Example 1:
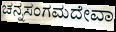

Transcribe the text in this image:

ಚನ್ನಸಂಗಮದೇವಾ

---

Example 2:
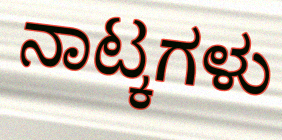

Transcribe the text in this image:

ನಾಟ್ಕಗಳು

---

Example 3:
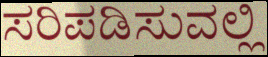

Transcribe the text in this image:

ಸರಿಪಡಿಸುವಲ್ಲಿ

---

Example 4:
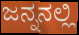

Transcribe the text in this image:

ಜನ್ನನಲ್ಲಿ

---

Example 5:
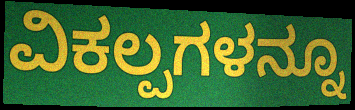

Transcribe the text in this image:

ವಿಕಲ್ಪಗಳನ್ನೂ